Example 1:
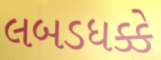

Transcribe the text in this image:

લબડધક્કે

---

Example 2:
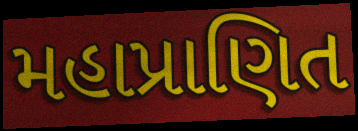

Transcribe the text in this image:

મહાપ્રાણિત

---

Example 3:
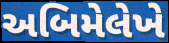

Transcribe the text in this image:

અબિમેલેખે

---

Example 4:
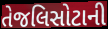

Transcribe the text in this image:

તેજલિસોટાની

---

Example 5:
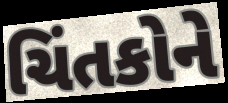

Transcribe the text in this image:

ચિંતકોને